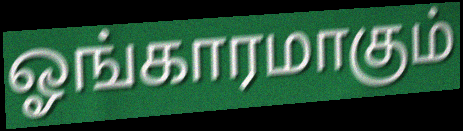
ஓங்காரமாகும்